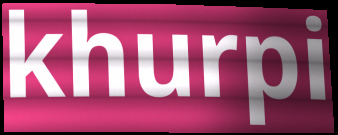
khurpi